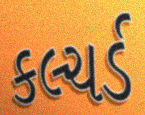
કલ્ચર્ડ